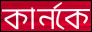
কার্নকে